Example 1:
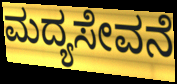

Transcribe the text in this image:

ಮದ್ಯಸೇವನೆ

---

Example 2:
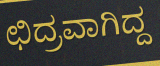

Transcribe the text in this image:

ಛಿದ್ರವಾಗಿದ್ದ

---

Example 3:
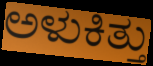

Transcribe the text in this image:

ಅಳುಕಿತ್ತು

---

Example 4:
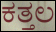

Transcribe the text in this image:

ಕತ್ತಲ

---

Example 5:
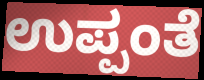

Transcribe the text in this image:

ಉಪ್ಪಂತೆ